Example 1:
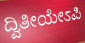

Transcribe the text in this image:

ದ್ವಿತೀಯೇಽಪಿ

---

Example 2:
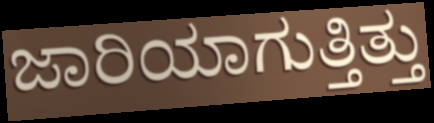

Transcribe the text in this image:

ಜಾರಿಯಾಗುತ್ತಿತ್ತು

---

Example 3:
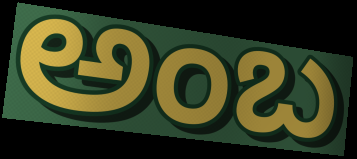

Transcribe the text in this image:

ಅಂಬ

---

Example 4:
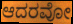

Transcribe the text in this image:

ಆದರವೋ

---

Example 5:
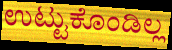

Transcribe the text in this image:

ಉಟ್ಟುಕೊಂಡಿಲ್ಲ